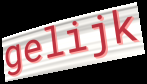
gelijk